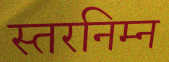
स्तरनिम्न